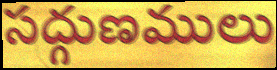
సద్గుణములు